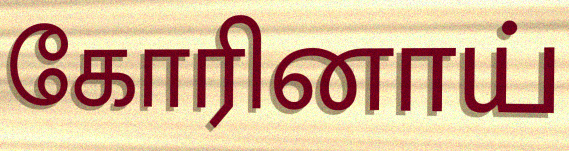
கோரினாய்